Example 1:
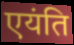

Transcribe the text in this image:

एयंति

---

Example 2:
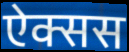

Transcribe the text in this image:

ऐक्सस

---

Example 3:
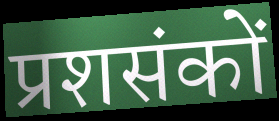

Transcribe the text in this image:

प्रशसंकों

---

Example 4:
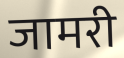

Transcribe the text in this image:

जामरी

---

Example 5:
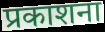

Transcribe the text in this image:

प्रकाशना